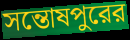
সন্তোষপুরের